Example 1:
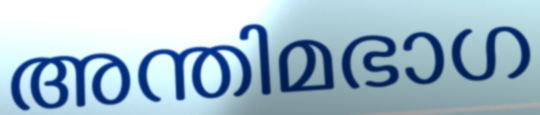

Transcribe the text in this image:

അന്തിമഭാഗ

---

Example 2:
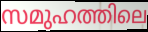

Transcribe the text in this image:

സമുഹത്തിലെ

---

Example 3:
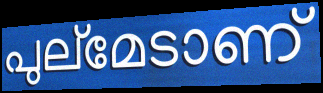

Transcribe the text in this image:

പുല്മേടാണ്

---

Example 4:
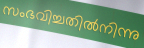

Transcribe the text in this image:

സംഭവിച്ചതിൽനിന്നു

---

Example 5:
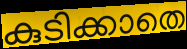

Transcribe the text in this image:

കുടിക്കാതെ